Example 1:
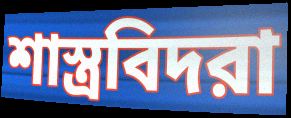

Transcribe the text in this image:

শাস্ত্রবিদরা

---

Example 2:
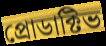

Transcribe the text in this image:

প্রোডাক্টিভ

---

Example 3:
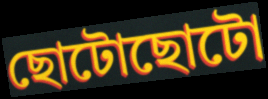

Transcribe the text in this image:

ছোটোছোটো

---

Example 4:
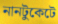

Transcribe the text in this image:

নানটুকেটে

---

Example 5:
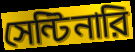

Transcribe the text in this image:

সেন্টিনারি